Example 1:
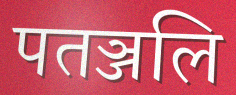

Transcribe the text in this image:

पतञ्जलि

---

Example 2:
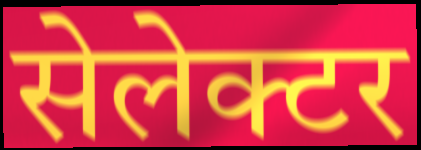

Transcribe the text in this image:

सेलेक्‍टर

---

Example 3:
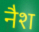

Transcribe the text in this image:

नैश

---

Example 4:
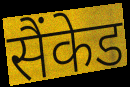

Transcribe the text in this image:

सैंकेड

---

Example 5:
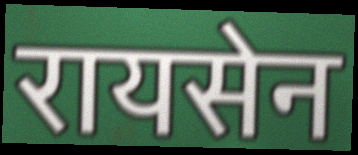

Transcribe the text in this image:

रायसेन